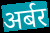
अर्बर